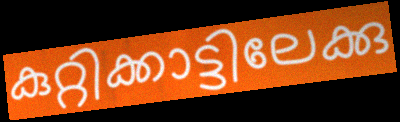
കുറ്റിക്കാട്ടിലേക്കു